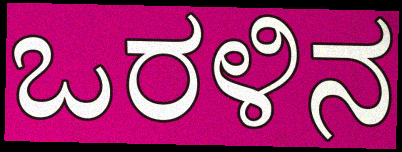
ಒರಳಿನ